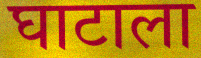
घाटाला